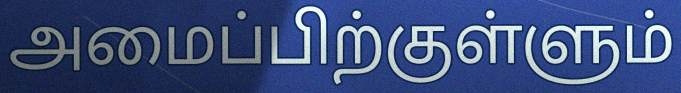
அமைப்பிற்குள்ளும்